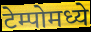
टेम्पोमध्ये